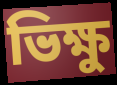
ভিক্ষু